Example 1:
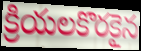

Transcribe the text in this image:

క్రియలకొరకైన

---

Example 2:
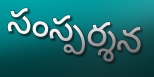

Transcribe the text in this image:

సంస్పర్శన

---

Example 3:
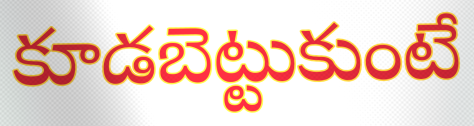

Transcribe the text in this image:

కూడబెట్టుకుంటే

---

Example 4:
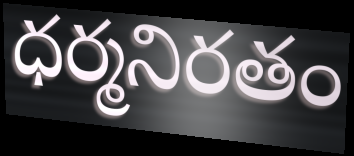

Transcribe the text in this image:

ధర్మనిరతం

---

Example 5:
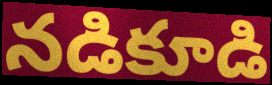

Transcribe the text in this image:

నడికూడి